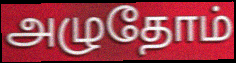
அழுதோம்